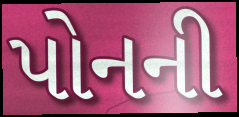
પોનની